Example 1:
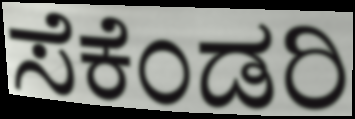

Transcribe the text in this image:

ಸೆಕೆಂಡರಿ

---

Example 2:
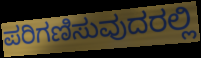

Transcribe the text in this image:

ಪರಿಗಣಿಸುವುದರಲ್ಲಿ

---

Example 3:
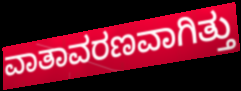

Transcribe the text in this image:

ವಾತಾವರಣವಾಗಿತ್ತು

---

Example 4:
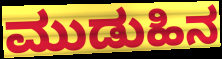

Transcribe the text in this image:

ಮುಡುಹಿನ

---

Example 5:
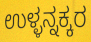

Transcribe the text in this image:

ಉಳ್ಳನ್ನಕ್ಕರ